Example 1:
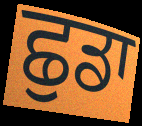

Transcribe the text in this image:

ਛੁਡਾ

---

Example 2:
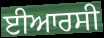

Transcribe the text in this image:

ਈਆਰਸੀ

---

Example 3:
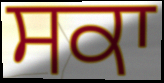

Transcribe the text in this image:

ਸਕਾ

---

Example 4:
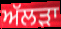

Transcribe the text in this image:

ਅੱਲੜਾ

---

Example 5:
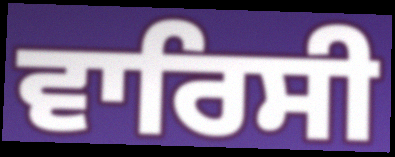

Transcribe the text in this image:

ਵਾਰਿਸੀ